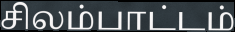
சிலம்பாட்டம்